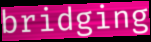
bridging